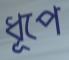
ধূপে